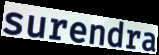
surendra